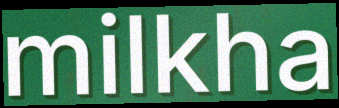
milkha